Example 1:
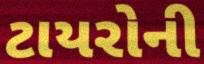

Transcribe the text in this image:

ટાયરોની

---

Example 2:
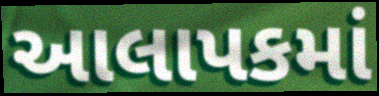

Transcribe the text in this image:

આલાપકમાં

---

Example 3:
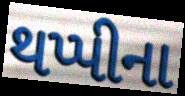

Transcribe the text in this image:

થપ્પીના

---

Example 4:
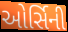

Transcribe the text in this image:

ઓર્સિની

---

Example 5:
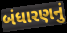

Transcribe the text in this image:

બંધારણનું